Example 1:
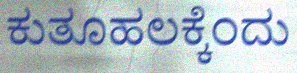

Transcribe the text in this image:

ಕುತೂಹಲಕ್ಕೆಂದು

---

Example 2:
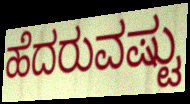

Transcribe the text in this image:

ಹೆದರುವಷ್ಟು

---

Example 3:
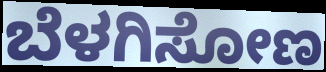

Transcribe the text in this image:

ಬೆಳಗಿಸೋಣ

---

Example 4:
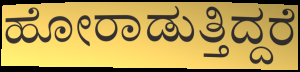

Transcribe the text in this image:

ಹೋರಾಡುತ್ತಿದ್ದರೆ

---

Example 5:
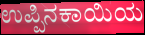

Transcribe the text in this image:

ಉಪ್ಪಿನಕಾಯಿಯ